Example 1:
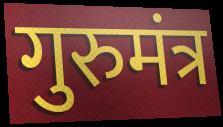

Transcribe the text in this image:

गुरुमंत्र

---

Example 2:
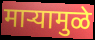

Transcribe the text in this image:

माऱ्यामुळे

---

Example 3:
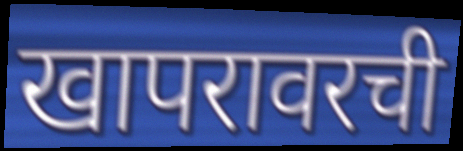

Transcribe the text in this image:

खापरावरची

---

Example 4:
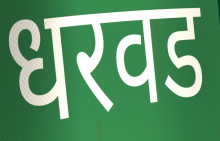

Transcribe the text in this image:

धरवड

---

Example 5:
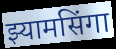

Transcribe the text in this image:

झ्यामसिंगा